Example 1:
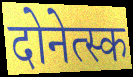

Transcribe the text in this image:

दोनेत्स्क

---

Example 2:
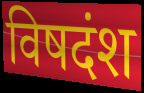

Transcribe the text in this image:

विषदंश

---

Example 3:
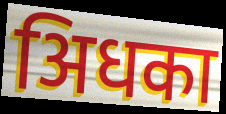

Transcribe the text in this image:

अिधका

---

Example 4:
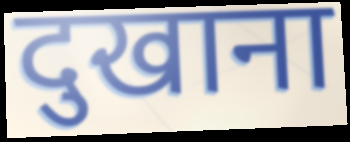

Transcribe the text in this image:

दुखाना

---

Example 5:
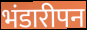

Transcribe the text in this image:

भंडारीपन